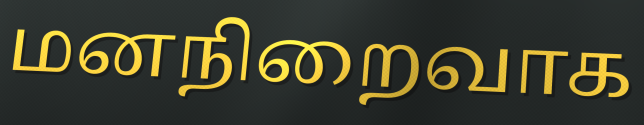
மனநிறைவாக